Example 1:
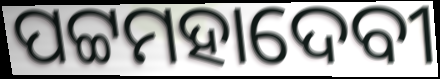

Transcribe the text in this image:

ପଟ୍ଟମହାଦେବୀ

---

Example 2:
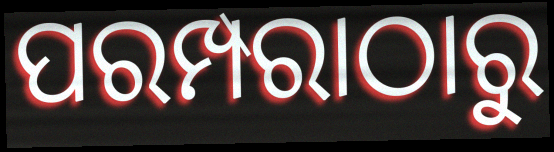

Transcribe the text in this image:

ପରମ୍ପରାଠାରୁ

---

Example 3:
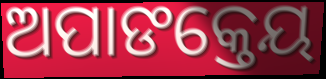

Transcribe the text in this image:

ଅପାଙକ୍ତେୟ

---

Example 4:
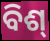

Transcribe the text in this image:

ବିଶ୍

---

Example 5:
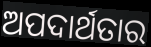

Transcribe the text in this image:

ଅପଦାର୍ଥତାର